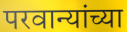
परवान्यांच्या